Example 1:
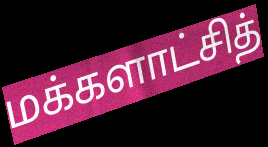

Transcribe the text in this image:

மக்களாட்சித்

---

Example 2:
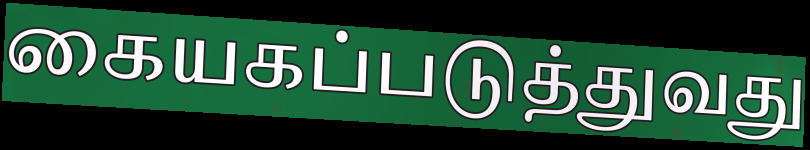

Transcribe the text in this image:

கையகப்படுத்துவது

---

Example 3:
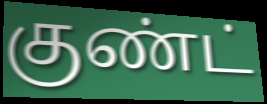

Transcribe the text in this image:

குண்ட்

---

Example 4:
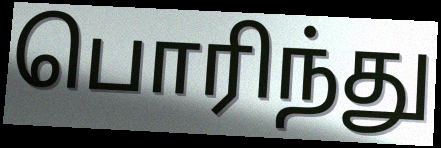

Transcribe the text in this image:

பொரிந்து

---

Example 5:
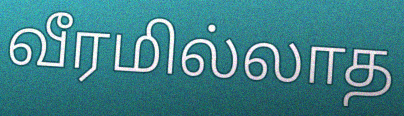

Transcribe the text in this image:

வீரமில்லாத